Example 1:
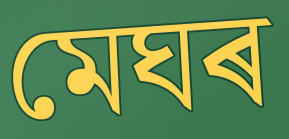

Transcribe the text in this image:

মেঘৰ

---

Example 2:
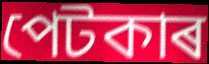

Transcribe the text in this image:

পেটকাৰ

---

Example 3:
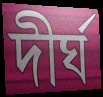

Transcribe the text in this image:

দীৰ্ঘ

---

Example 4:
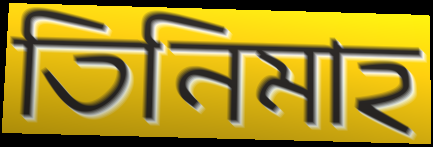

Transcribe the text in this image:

তিনিমাহ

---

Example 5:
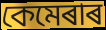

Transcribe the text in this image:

কেমেৰাৰ